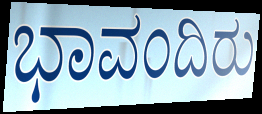
ಭಾವಂದಿರು